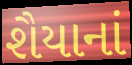
શૈયાનાં